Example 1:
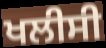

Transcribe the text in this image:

ਖਲੀਸੀ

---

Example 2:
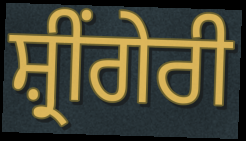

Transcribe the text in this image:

ਸ਼੍ਰੀਂਗੇਰੀ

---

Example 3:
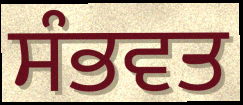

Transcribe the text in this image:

ਸੰਭਵਤ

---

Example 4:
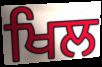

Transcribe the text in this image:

ਖਿਲ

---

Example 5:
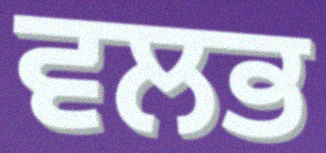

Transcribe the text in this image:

ਵਲਭ